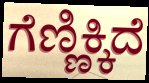
ಗೆಣ್ಣಿಕ್ಕಿದೆ